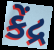
કેંદ્ર